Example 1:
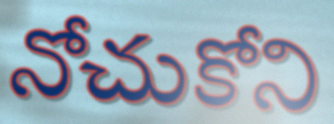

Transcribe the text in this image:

నోచుకోని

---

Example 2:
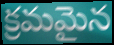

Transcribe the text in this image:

క్రమమైన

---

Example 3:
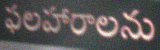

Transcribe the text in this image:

ఫలహారాలను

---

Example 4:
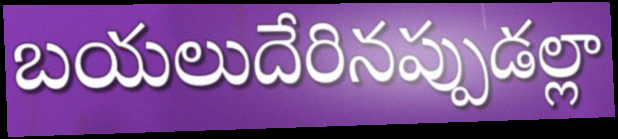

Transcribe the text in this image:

బయలుదేరినప్పుడల్లా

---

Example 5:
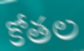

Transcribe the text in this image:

కోతల